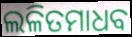
ଲଳିତମାଧବ